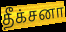
தீக்சனா